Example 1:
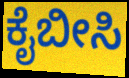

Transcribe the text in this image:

ಕೈಬೀಸಿ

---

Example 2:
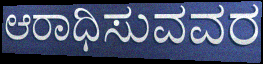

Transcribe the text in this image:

ಆರಾಧಿಸುವವರ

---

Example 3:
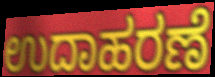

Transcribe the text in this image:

ಉದಾಹರಣೆ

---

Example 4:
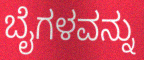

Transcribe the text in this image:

ಬೈಗಳವನ್ನು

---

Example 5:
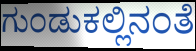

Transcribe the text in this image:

ಗುಂಡುಕಲ್ಲಿನಂತೆ